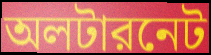
অলটারনেট